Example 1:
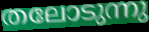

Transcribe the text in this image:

തലോടുന്നു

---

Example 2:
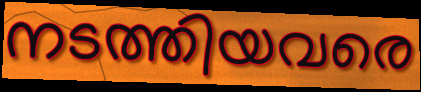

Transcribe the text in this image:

നടത്തിയവരെ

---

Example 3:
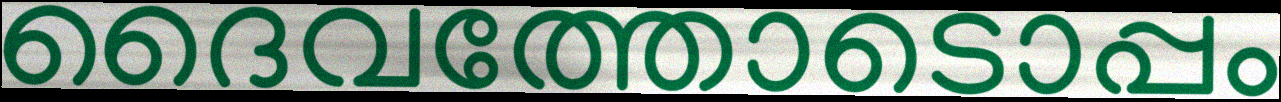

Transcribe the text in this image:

ദൈവത്തോടൊപ്പം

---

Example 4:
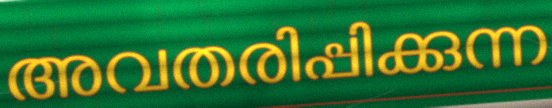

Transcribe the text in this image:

അവതരിപ്പിക്കുന്ന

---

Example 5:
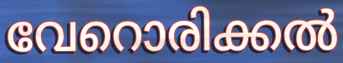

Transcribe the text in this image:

വേറൊരിക്കൽ